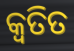
କ୍ୱତିତ